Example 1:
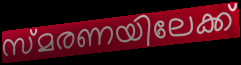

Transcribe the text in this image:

സ്മരണയിലേക്ക്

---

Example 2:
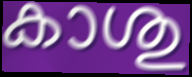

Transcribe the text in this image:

കാശു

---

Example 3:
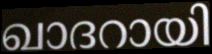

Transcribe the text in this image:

ഖാദറായി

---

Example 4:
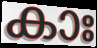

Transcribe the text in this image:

കാഃ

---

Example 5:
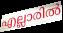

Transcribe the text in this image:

എല്ലാരിൽ